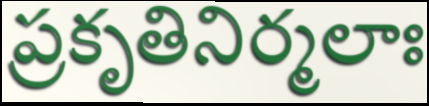
ప్రకృతినిర్మలాః